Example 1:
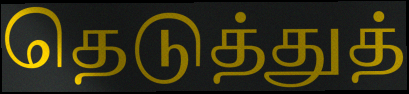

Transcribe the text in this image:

தெடுத்துத்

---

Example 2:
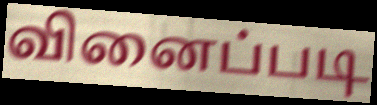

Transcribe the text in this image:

வினைப்படி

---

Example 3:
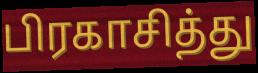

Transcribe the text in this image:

பிரகாசித்து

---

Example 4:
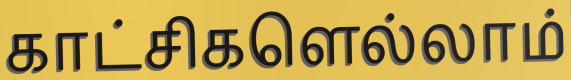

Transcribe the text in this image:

காட்சிகளெல்லாம்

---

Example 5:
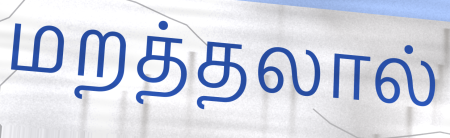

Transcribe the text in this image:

மறத்தலால்